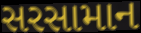
સરસામાન